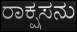
ರಾಕ್ಷಸನು